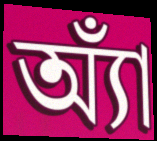
অ্যাঁ